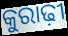
କୁରାଢ଼ୀ